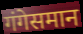
गंगेसमान